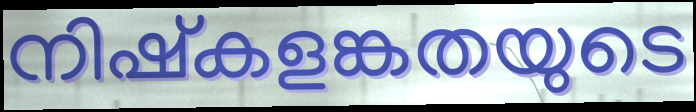
നിഷ്കളങ്കതയുടെ